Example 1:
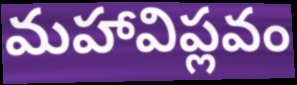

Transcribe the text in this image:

మహావిప్లవం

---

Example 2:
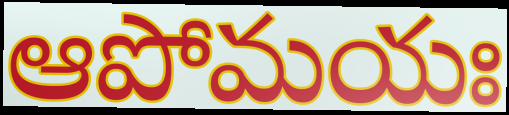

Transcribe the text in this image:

ఆపోమయః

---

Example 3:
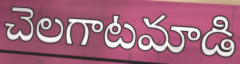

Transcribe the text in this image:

చెలగాటమాడి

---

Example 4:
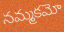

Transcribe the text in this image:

నమ్మకమో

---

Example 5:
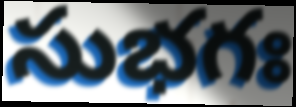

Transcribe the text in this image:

సుభగః